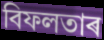
বিফলতাৰ